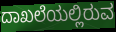
ದಾಖಲೆಯಲ್ಲಿರುವ